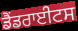
ਡੈਂਡਰਾਈਟਸ